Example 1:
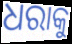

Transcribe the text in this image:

ଧରାକୁ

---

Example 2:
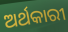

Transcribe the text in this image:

ଅର୍ଥକାରୀ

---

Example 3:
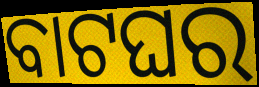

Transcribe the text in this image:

ବାଟଘର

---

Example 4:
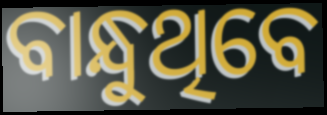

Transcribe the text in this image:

ବାନ୍ଧୁଥିବେ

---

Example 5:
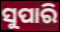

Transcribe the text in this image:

ସୁପାରି